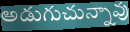
అడుగుచున్నావు